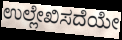
ಉಲ್ಲೇಖಿಸದೆಯೇ